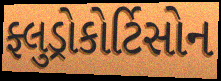
ફ્લુડ્રોકોર્ટિસોન